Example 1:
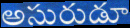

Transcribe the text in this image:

అసురుడూ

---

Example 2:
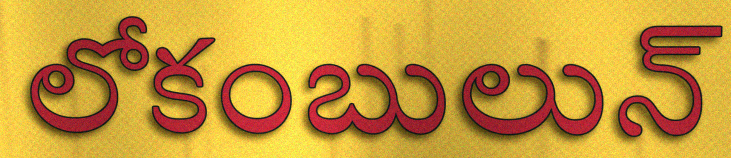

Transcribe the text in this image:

లోకంబులున్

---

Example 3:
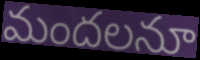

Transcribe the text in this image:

మందలనూ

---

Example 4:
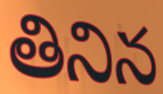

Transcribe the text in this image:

తినిన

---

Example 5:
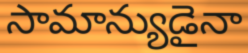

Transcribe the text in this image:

సామాన్యుడైనా